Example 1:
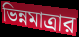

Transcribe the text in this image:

ভিন্নমাত্রার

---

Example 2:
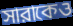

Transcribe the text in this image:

সারাকেও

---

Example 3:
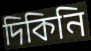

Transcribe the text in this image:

দিকিনি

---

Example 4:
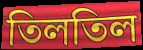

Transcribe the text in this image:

তিলতিল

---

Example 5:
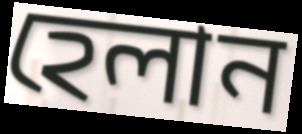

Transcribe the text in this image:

হেলান